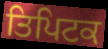
ਤਿਪਿਟਕ